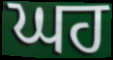
ਘਹ